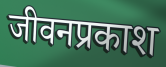
जीवनप्रकाश